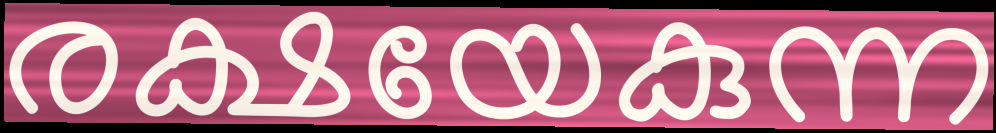
രക്ഷയേകുന്ന